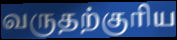
வருதற்குரிய